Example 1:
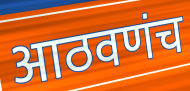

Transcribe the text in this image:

आठवणंच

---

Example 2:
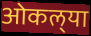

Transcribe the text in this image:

ओकल्या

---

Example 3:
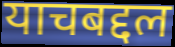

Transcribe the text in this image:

याचबद्दल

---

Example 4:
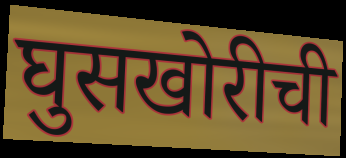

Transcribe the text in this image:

घुसखोरीची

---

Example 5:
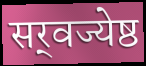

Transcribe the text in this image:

सर्वज्येष्ठ